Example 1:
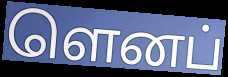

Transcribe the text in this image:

ளெனப்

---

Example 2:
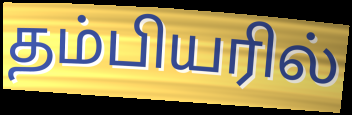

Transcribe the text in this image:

தம்பியரில்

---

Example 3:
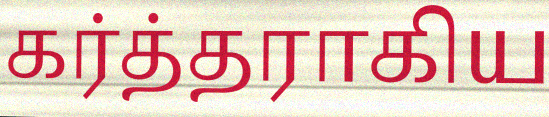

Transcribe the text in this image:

கர்த்தராகிய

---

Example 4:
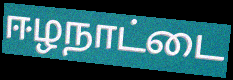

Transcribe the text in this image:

ஈழநாட்டை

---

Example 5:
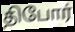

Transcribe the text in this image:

திபோர்